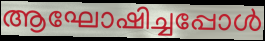
ആഘോഷിച്ചപ്പോൾ